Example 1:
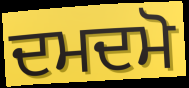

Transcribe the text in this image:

ਦਮਦਮੋ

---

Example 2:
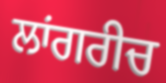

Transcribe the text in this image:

ਲਾਂਗਰੀਚ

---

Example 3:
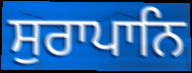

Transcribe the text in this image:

ਸੁਰਾਪਾਨਿ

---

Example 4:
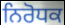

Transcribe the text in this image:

ਨਿਰੋਧਕ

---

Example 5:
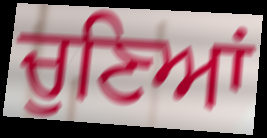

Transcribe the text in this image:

ਚੁਣਿਆਂ